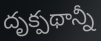
దృక్పథాన్నీ